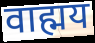
वाह्मय